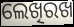
ଲେଖିରଖ